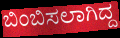
ಬಿಂಬಿಸಲಾಗಿದ್ದ